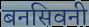
बनसिवनी